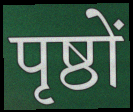
पृष्ठों